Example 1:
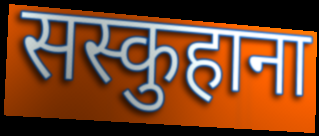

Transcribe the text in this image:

सस्कुहाना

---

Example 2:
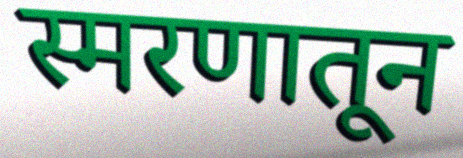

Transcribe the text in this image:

स्मरणातून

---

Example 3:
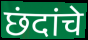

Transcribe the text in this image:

छंदांचे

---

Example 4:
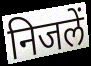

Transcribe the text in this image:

निजलें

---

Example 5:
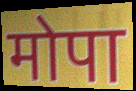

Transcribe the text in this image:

मोपा